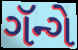
ગૅન્ગે